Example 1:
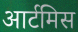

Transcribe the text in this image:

आर्टमिस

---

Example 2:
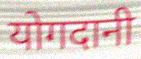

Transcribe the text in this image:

योगदानी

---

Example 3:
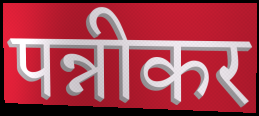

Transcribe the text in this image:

पन्नीकर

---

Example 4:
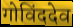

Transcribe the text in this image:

गोविंददेव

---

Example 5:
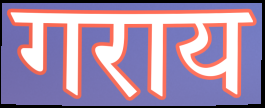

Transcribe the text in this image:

गराय